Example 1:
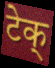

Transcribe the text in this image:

टेक्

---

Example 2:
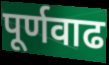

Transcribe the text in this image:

पूर्णवाढ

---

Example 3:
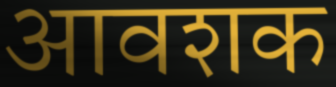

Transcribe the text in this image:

आवशक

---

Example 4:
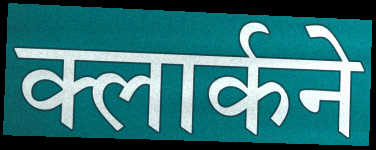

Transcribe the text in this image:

क्लार्कने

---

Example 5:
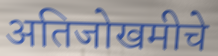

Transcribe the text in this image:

अतिजोखमीचे